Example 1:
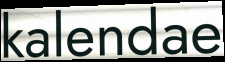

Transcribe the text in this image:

kalendae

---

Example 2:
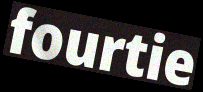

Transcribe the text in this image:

fourtie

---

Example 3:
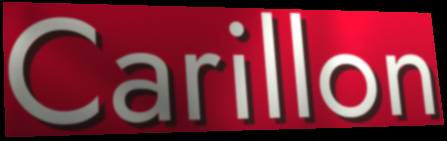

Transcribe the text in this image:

Carillon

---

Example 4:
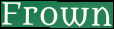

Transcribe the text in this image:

Frown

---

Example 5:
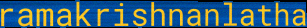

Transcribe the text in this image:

ramakrishnanlatha